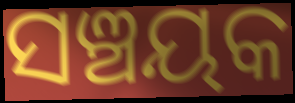
ସଞ୍ଚୟକ